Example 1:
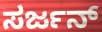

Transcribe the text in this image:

ಸರ್ಜನ್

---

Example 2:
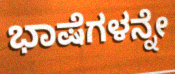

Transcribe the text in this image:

ಭಾಷೆಗಳನ್ನೇ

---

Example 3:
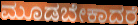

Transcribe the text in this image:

ಮೂಡಬೇಕಾದರೆ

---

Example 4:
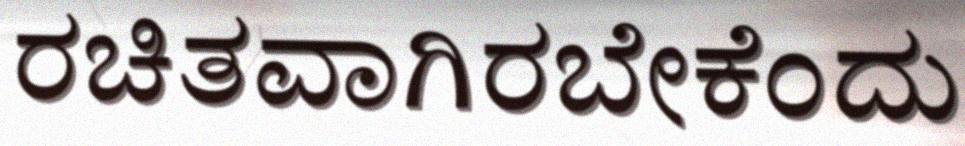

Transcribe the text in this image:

ರಚಿತವಾಗಿರಬೇಕೆಂದು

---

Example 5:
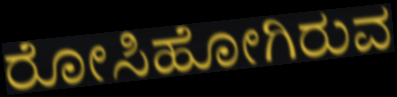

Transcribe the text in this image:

ರೋಸಿಹೋಗಿರುವ